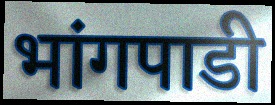
भांगपाडी